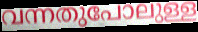
വന്നതുപോലുള്ള